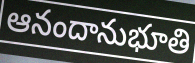
ఆనందానుభూతి